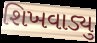
શિખવાડ્યુ